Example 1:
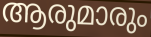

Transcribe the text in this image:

ആരുമാരും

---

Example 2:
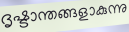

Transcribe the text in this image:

ദൃഷ്ടാന്തങ്ങളാകുന്നു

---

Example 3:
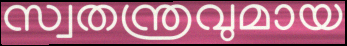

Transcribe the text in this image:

സ്വതന്ത്രവുമായ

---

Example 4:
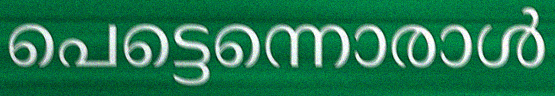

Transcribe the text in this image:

പെട്ടെന്നൊരാൾ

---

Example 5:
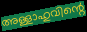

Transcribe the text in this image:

അള്ളാഹുവിന്റെ